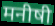
मनीषी